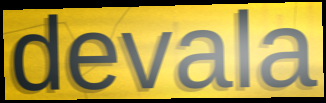
devala